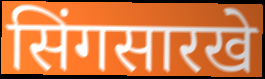
सिंगसारखे